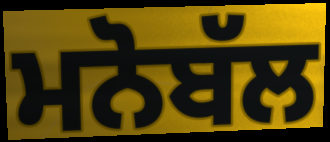
ਮਨੋਬੱਲ